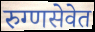
रुग्णसेवेत